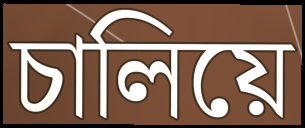
চালিয়ে